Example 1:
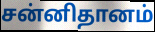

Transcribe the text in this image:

சன்னிதானம்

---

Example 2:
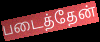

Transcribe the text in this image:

படைத்தேன்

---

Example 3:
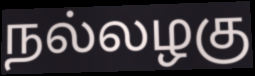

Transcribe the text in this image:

நல்லழகு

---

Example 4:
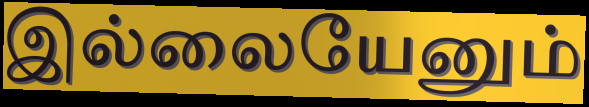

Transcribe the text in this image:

இல்லையேனும்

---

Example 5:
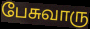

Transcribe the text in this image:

பேசுவாரு